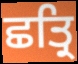
ਛਤ੍ਰਿ